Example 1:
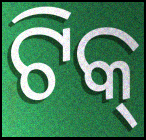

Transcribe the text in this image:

ଟିକ୍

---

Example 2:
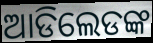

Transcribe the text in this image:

ଆଡିଲେଡଙ୍କ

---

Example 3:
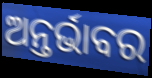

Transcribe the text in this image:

ଅନ୍ତର୍ଭାବର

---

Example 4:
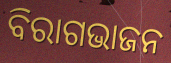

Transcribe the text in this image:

ବିରାଗଭାଜନ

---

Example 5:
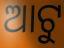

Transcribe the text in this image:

ଆଟୁ